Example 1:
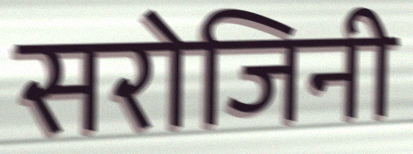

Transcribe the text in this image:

सरोजिनी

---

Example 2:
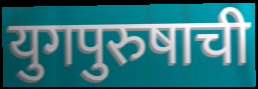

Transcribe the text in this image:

युगपुरुषाची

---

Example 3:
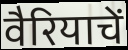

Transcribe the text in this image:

वैरियाचें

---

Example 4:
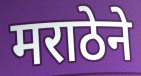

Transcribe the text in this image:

मराठेने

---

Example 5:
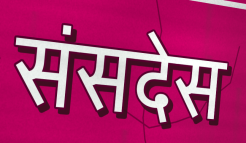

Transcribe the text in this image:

संसदेस